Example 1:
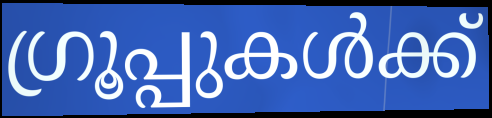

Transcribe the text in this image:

ഗ്രൂപ്പുകൾക്ക്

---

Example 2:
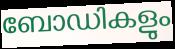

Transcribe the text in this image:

ബോഡികളും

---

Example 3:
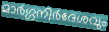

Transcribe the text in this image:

മാർഗ്ഗനിർദേശവും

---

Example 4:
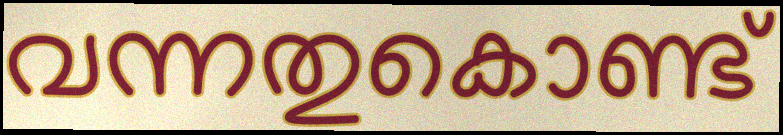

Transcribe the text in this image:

വന്നതുകൊണ്ട്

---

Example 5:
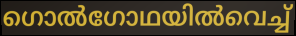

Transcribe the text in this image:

ഗൊൽഗോഥയിൽവെച്ച്